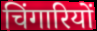
चिंगारियों